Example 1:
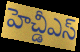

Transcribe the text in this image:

హెచ్డీఎస్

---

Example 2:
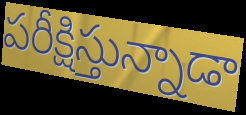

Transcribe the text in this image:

పరీక్షిస్తున్నాడా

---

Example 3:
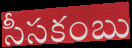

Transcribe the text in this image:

సీసకంబు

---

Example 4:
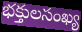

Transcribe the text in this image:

భక్తులసంఖ్య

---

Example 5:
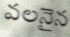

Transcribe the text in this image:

వలనైన